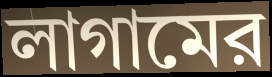
লাগামের